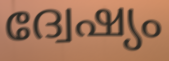
ദ്വേഷ്യം